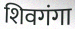
शिवगंगा